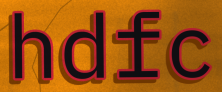
hdfc